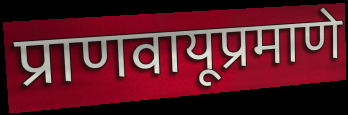
प्राणवायूप्रमाणे